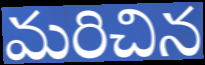
మరిచిన